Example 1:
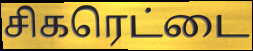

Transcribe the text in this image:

சிகரெட்டை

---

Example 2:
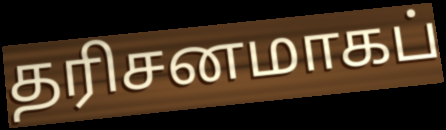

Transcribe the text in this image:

தரிசனமாகப்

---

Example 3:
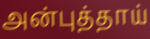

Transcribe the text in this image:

அன்புத்தாய்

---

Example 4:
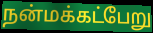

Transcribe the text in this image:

நன்மக்கட்பேறு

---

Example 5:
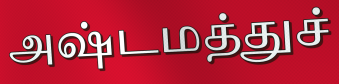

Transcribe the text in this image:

அஷ்டமத்துச்